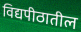
विद्यपीठातील